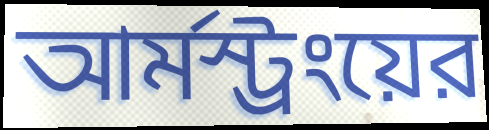
আর্মস্ট্রংয়ের